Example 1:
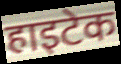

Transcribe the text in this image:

हाइटेक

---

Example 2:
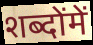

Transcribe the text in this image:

शब्दोंमें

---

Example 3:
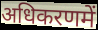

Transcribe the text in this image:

अधिकरणमें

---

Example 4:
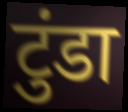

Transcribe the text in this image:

टुंडा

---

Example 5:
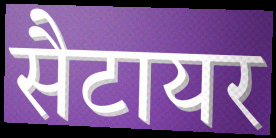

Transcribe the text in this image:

सैटायर